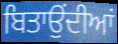
ਬਿਤਾਉਂਦੀਆਂ